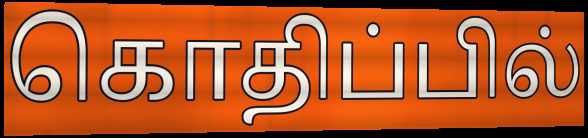
கொதிப்பில்